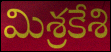
మిశ్రకేశి